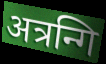
अत्रन्गि